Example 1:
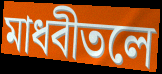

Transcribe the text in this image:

মাধবীতলে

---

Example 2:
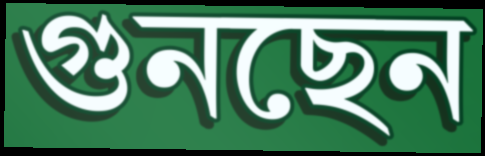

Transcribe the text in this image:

গুনছেন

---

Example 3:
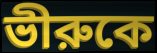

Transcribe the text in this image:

ভীরুকে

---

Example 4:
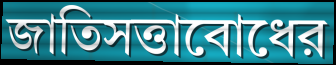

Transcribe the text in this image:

জাতিসত্তাবোধের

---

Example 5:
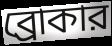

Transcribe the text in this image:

ব্রোকার